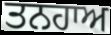
ਤਨਹਾਅ